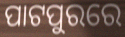
ପାଟପୁରରେ